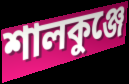
শালকুঞ্জে